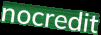
nocredit